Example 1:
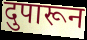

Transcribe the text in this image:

दुपारून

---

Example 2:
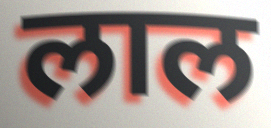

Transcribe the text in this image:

लाल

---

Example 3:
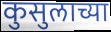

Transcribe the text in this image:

कुसुलाच्या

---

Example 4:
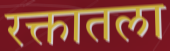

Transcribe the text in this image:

रक्तातला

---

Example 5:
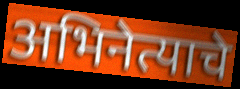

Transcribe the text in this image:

अभिनेत्याचे